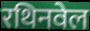
रथिनवेल